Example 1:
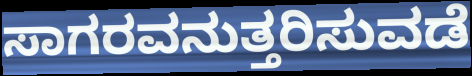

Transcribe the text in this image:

ಸಾಗರವನುತ್ತರಿಸುವಡೆ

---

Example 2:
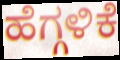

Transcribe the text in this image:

ಹೆಗ್ಗಳಿಕೆ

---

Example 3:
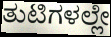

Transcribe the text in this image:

ತುಟಿಗಳಲ್ಲೇ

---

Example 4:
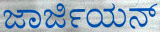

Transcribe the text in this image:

ಜಾರ್ಜಿಯನ್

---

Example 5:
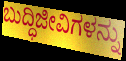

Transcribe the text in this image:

ಬುದ್ಧಿಜೀವಿಗಳನ್ನು